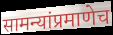
सामन्यांप्रमाणेच